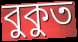
বুকুত